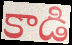
కాడి